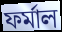
ফর্মাল